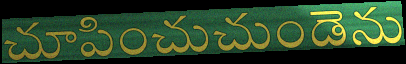
చూపించుచుండెను